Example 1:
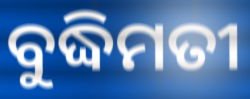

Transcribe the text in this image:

ବୁଦ୍ଧିମତୀ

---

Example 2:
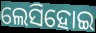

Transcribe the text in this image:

ଲେସିହୋଇ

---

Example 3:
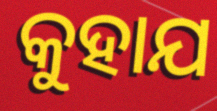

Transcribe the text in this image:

କୁହାଯ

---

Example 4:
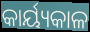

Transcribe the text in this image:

କାର୍ୟ୍ୟକାଳ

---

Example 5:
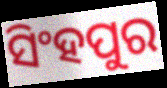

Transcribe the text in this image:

ସିଂହପୁର